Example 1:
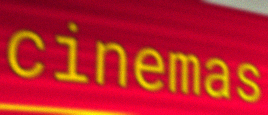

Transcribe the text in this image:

cinemas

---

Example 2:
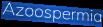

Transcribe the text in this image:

Azoospermia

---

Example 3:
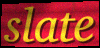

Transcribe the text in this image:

slate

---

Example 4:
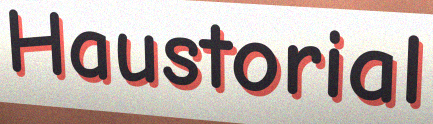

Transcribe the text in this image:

Haustorial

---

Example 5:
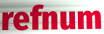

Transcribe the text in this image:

refnum